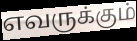
எவருக்கும்